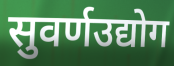
सुवर्णउद्योग